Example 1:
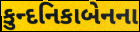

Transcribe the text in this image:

કુન્દનિકાબેનના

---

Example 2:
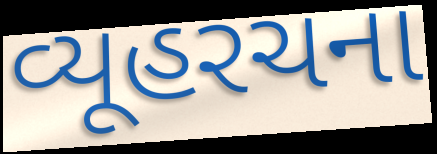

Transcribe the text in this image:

વ્યૂહરચના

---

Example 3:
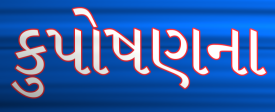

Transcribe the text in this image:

કુપોષણના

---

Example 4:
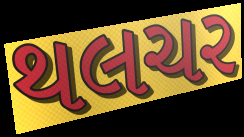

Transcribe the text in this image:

થલચર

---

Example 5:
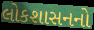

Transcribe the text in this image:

લોકશાસનનો